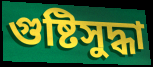
গুষ্টিসুদ্ধা